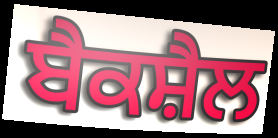
ਬੈਕਸ਼ੈਲ